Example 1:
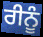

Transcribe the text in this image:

ਰੀਨੂੰ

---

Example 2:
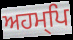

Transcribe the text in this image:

ਅਹਮ੍ਪਿ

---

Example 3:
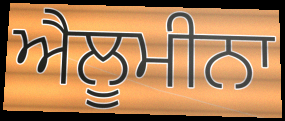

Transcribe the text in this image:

ਐਲੂਮੀਨਾ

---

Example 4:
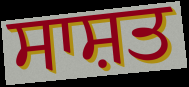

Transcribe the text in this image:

ਸਾਸ਼ਤ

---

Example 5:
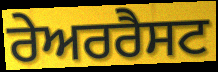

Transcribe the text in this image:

ਰੇਅਰਰੈਸਟ